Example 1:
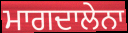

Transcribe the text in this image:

ਮਾਗਦਾਲੇਨਾ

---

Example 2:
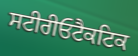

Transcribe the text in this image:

ਸਟੀਰੀਓਟੈਕਟਿਕ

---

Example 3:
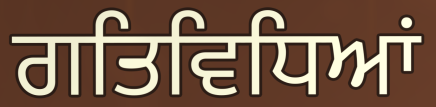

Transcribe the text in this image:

ਗਤਿਵਿਧਿਆਂ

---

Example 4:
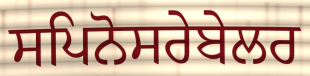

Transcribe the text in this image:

ਸਪਿਨੋਸਰੇਬੇਲਰ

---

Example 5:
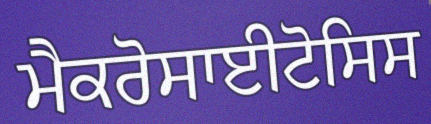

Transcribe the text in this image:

ਮੈਕਰੋਸਾਈਟੋਸਿਸ